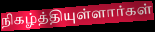
நிகழ்த்தியுள்ளார்கள்